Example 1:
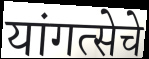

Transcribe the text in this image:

यांगत्सेचे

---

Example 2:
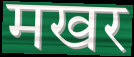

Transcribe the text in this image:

मखर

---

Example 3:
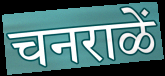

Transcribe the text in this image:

चनराळें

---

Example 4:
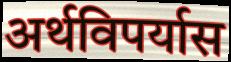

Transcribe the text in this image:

अर्थविपर्यास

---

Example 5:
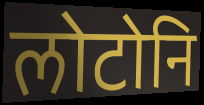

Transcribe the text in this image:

लोटोनि